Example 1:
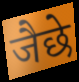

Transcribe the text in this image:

जैछे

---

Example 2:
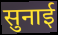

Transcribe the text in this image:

सुनाई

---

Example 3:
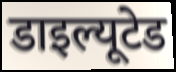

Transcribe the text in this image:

डाइल्यूटेड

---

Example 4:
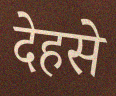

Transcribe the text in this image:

देहसे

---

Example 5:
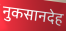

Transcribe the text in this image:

नुकसानदेह